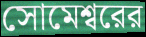
সোমেশ্বরের